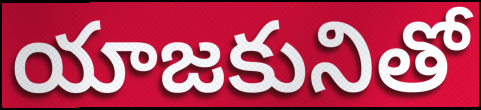
యాజకునితో